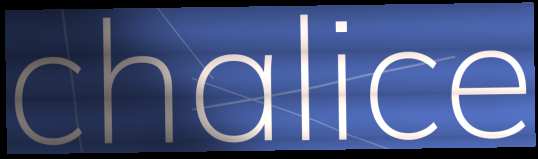
chalice